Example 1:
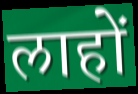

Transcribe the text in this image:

लाहों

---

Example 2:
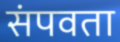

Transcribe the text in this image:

संपवता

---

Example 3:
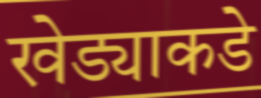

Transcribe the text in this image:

खेड्याकडे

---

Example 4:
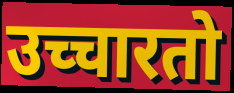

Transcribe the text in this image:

उच्चारतो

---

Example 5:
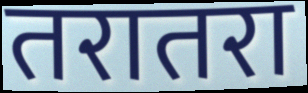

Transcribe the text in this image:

तरातरा